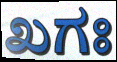
ಖಗಃ